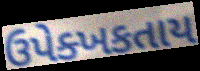
ઉપેક્ખકતાય